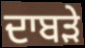
ਦਾਬੜੇ